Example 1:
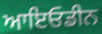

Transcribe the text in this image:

ਆਇਓਡੀਨ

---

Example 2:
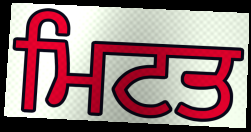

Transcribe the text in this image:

ਮਿਟਤ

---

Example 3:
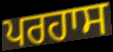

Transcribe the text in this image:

ਪਰਹਾਸ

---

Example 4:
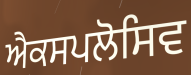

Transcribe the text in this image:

ਐਕਸਪਲੋਸਿਵ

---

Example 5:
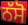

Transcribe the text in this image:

ਨੱਸੋ